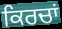
ਕਿਰਚਾਂ